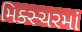
મિક્સ્ચરમાં